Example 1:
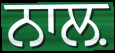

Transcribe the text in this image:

ਨਾਲ਼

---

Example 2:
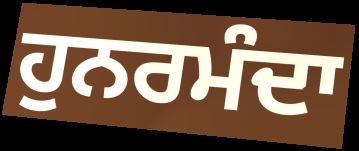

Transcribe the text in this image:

ਹੁਨਰਮੰਦਾ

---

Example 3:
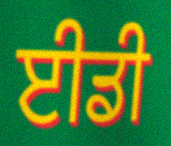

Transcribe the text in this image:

ਈਡੀ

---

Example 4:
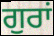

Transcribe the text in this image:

ਗੁਰਾਂ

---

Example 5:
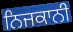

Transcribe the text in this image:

ਨਿਜਕਾਨੀ